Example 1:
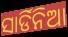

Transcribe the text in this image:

ସାର୍ଡିନିଆ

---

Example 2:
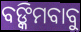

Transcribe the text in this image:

ବଙ୍କିମବାବୁ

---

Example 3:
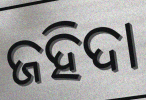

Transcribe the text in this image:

ଜହିଦା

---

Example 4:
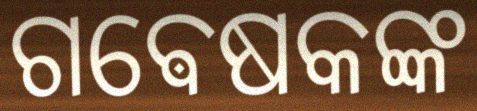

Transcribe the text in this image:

ଗଵେଷକଙ୍କ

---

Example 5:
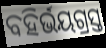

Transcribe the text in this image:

ବହିର୍ଭୟଗ୍ରସ୍ତ